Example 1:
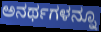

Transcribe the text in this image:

ಅನರ್ಥಗಳನ್ನೂ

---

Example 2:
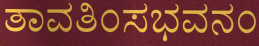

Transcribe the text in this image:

ತಾವತಿಂಸಭವನಂ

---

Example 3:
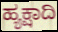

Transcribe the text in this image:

ಹ್ಯಕ್ಷಾದಿ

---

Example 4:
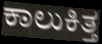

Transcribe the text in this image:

ಕಾಲುಕಿತ್ತ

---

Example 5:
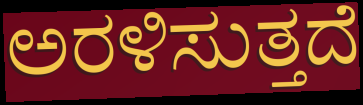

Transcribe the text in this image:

ಅರಳಿಸುತ್ತದೆ